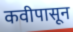
कवीपासून